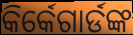
କିର୍କେଗାର୍ଡଙ୍କ